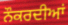
ਨੌਕਰਦੀਆਂ